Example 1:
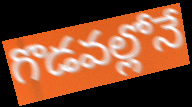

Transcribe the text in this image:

గొడవల్లోనే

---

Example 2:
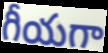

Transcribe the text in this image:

గీయగా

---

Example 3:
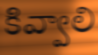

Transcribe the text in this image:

కివ్వాలి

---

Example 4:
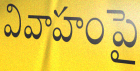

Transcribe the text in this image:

వివాహంపై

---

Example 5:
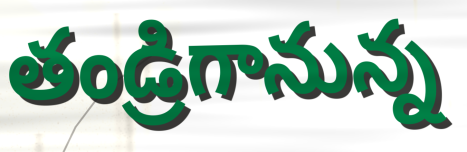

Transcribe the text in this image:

తండ్రిగానున్న